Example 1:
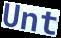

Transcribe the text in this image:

Unt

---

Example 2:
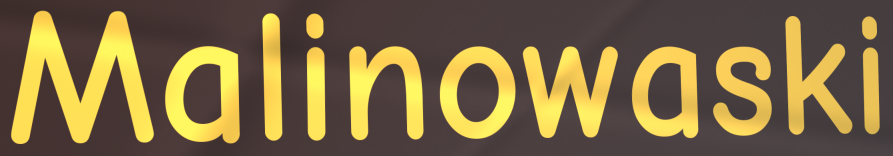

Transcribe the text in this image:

Malinowaski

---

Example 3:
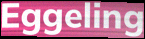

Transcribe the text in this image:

Eggeling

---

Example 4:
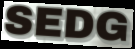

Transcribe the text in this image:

SEDG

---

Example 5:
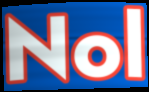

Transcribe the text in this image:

Nol